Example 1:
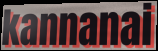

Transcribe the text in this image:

kannanai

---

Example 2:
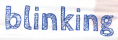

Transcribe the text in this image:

blinking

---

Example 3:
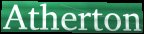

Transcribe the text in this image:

Atherton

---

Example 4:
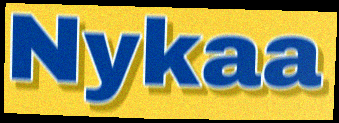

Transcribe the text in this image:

Nykaa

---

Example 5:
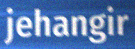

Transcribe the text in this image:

jehangir